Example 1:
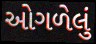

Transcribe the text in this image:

ઓગળેલું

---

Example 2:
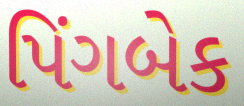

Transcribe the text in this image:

પિંગબેક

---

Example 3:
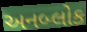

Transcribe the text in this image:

અનબ્લોક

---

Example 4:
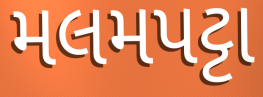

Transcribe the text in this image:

મલમપટ્ટા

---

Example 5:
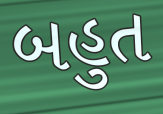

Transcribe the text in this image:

બહુત